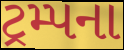
ટ્રમ્પના